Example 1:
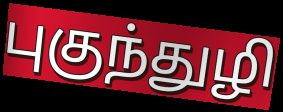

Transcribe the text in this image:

புகுந்துழி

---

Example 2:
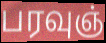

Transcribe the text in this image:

பரவுஞ்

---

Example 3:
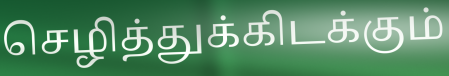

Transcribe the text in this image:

செழித்துக்கிடக்கும்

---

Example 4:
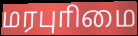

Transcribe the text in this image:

மரபுரிமை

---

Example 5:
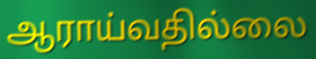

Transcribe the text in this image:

ஆராய்வதில்லை